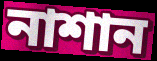
নাশান